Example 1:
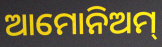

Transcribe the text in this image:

ଆମୋନିଅମ୍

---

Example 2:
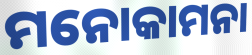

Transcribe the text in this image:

ମନୋକାମନା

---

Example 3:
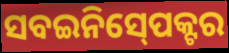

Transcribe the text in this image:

ସବଇନିସ୍‍ପେକ୍ଟର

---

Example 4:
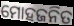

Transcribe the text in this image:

ମୋହଜନିତ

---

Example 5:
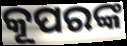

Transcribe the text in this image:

କୂପରଙ୍କ